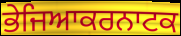
ਭੇਜਿਆਕਰਨਾਟਕ